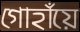
গোহাঁয়ে